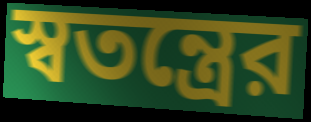
স্বতন্ত্রের